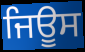
ਜਿਊਸ